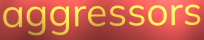
aggressors